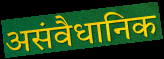
असंवैधानिक